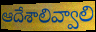
ఆదేశాలివ్వాలి